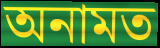
অনামত